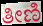
ತೀಣಿ